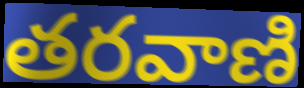
తరవాణి